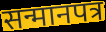
सन्मानपत्र